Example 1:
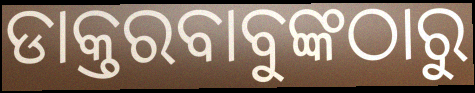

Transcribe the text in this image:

ଡାକ୍ତରବାବୁଙ୍କଠାରୁ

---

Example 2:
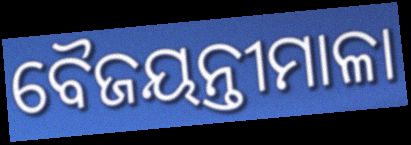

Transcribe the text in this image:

ବୈଜୟନ୍ତୀମାଳା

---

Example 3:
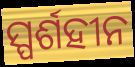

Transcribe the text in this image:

ସ୍ପର୍ଶହୀନ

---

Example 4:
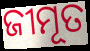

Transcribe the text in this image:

ଜୀମୂତ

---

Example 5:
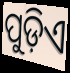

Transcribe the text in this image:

ପୁଡ଼ିଏ